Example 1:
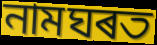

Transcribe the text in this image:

নামঘৰত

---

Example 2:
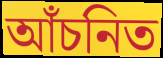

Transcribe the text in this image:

আঁচনিত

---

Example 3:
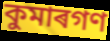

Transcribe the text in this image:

কুমাৰগণ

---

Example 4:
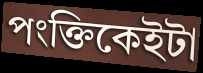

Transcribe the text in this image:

পংক্তিকেইটা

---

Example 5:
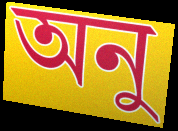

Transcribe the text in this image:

অনু